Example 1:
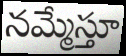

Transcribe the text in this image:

నమ్మేస్తూ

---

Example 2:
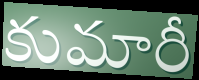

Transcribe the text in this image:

కుమారీ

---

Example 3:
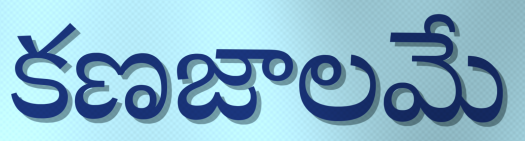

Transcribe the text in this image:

కణజాలమే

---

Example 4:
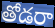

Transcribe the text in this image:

తోడరా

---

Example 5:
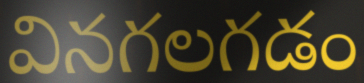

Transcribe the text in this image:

వినగలగడం